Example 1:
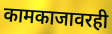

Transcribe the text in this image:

कामकाजावरही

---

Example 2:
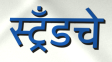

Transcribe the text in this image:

स्ट्रँडचे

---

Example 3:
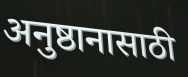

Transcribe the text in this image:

अनुष्ठानासाठी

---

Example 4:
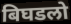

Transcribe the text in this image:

बिघडलो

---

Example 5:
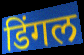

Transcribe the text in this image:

डिंगल